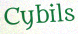
Cybils